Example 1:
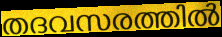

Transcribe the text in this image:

തദവസരത്തിൽ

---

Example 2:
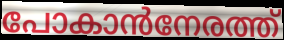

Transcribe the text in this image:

പോകാൻനേരത്ത്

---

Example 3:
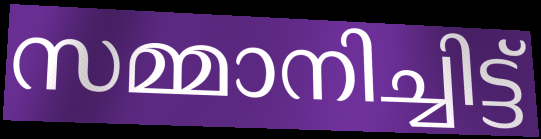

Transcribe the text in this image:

സമ്മാനിച്ചിട്ട്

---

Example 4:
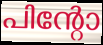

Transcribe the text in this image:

പിന്റോ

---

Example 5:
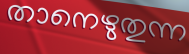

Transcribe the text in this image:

താനെഴുതുന്ന